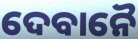
ଦେବାନୈ